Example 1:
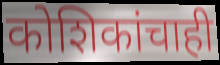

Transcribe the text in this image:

कोशिकांचाही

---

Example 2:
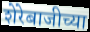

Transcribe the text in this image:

शेरेबाजीच्या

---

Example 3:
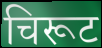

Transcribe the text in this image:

चिरूट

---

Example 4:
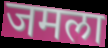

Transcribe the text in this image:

जमला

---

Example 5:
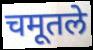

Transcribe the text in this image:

चमूतले